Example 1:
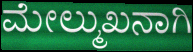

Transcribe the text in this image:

ಮೇಲ್ಮುಖನಾಗಿ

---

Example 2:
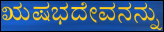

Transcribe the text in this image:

ಋಷಭದೇವನನ್ನು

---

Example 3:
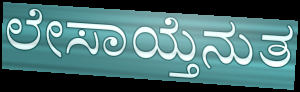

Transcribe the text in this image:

ಲೇಸಾಯ್ತೆನುತ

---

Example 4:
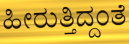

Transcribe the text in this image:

ಹೀರುತ್ತಿದ್ದಂತೆ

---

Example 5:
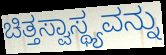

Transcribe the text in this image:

ಚಿತ್ತಸ್ವಾಸ್ಥ್ಯವನ್ನು